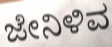
ಜೇನಿಳಿವ